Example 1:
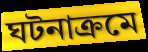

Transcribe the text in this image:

ঘটনাক্রমে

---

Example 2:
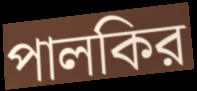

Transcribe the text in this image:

পালকির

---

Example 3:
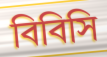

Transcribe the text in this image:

বিবিসি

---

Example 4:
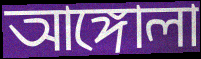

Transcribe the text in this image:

আঙ্গোলা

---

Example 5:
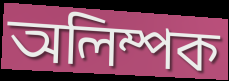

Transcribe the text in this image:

অলিম্পক